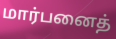
மார்பனைத்